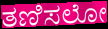
ತಣಿಸಲೋ